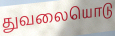
துவலையொடு